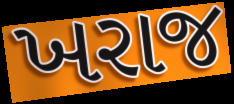
ખરાજ